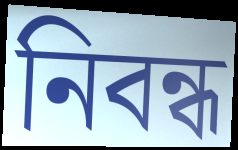
নিবন্ধ